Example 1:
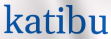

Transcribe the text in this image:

katibu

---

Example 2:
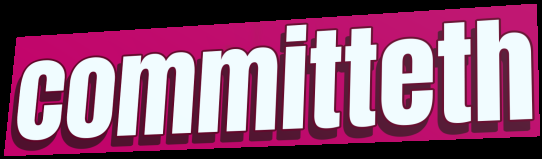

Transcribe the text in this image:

committeth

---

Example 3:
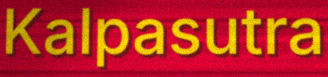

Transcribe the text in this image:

Kalpasutra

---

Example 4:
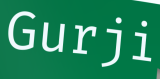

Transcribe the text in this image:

Gurji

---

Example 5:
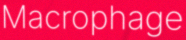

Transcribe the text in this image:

Macrophage